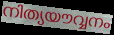
നിത്യയൗവ്വനം